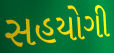
સહયોગી